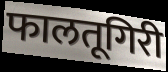
फालतूगिरी